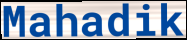
Mahadik